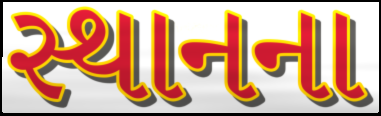
સ્થાનના